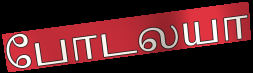
போடலயா